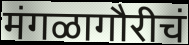
मंगळागौरीचं